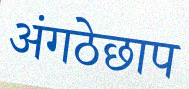
अंगठेछाप